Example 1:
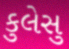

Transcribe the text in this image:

કુલેસુ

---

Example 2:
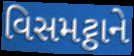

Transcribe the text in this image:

વિસમટ્ઠાને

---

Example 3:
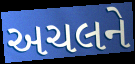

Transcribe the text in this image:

અચલને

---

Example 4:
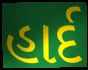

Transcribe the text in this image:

હાર્દ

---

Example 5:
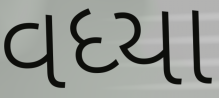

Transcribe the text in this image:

વધ્યા